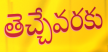
తెచ్చేవరకు